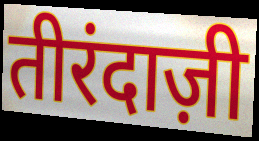
तीरंदाज़ी